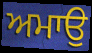
ਅਮਾਉ